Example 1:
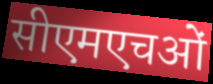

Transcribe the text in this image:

सीएमएचओं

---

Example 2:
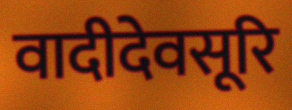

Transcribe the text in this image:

वादीदेवसूरि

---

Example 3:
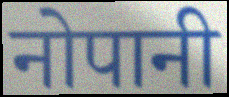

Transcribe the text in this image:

नोपानी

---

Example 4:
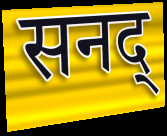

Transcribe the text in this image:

सनद्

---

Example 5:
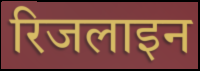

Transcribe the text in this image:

रिजलाइन